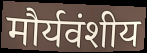
मौर्यवंशीय